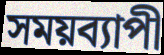
সময়ব্যাপী